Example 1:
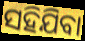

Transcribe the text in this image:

ସହିଯିବା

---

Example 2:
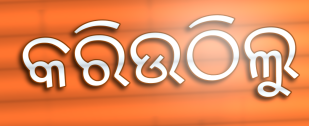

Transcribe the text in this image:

କରିଉଠିଲୁ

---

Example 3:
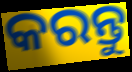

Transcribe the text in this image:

କରନ୍ତୁ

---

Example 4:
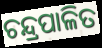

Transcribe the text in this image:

ଚନ୍ଦ୍ରପାଳିତ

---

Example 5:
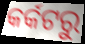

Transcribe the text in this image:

କର୍କଟରୁ